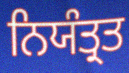
ਨਿਯੰਤ੍ਰਤ